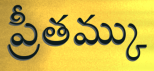
ప్రీతమ్కు